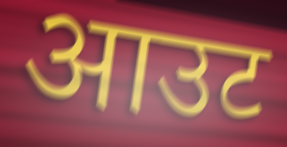
आउट